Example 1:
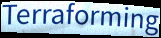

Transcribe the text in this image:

Terraforming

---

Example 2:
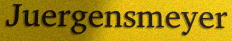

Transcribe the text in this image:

Juergensmeyer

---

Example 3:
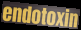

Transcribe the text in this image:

endotoxin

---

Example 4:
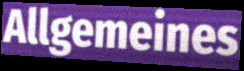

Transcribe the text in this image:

Allgemeines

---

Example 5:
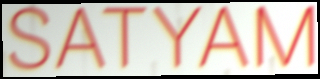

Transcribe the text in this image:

SATYAM